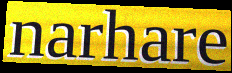
narhare